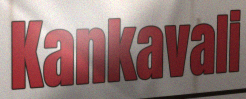
Kankavali